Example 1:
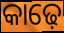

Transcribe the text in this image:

କାଢ଼େ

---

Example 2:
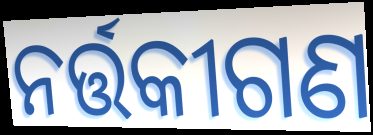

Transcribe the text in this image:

ନର୍ତ୍ତକୀଗଣ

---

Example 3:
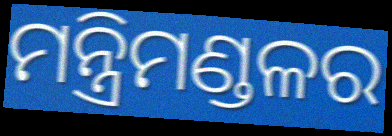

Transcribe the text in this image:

ମନ୍ତ୍ରିମଣ୍ଡଳର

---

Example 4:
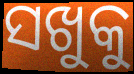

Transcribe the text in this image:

ସଖୁକୁ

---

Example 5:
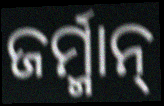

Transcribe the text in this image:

ଜର୍ମ୍ମାନ୍